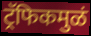
ट्रॅफिकमुळं